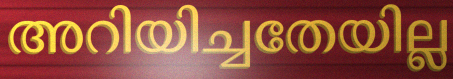
അറിയിച്ചതേയില്ല